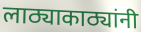
लाठ्याकाठ्यांनी